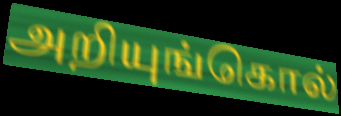
அறியுங்கொல்